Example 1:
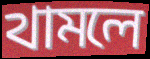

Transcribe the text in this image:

থামলে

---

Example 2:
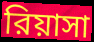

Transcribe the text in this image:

রিয়াসা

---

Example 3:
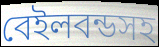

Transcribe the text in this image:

বেইলবন্ডসহ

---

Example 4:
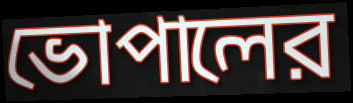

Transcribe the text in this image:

ভোপালের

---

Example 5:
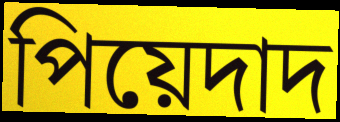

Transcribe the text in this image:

পিয়েদাদ